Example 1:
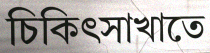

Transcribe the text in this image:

চিকিৎসাখাতে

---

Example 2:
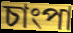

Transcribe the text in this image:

চাংপা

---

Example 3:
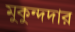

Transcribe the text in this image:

মুকুন্দদার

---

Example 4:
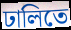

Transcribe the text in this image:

ঢালিতে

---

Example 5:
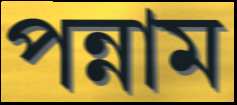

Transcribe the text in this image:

পন্নাম